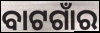
ବାଟଗାଁର